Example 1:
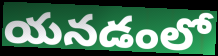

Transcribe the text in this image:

యనడంలో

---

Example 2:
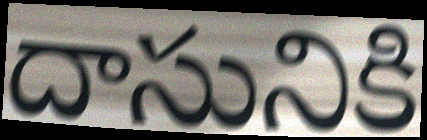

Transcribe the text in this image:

దాసునికి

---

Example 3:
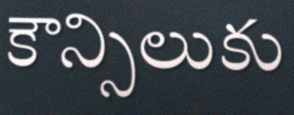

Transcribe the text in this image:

కౌన్సిలుకు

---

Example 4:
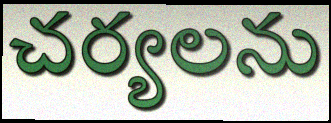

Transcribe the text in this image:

చర్యలను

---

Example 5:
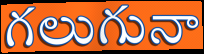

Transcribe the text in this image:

గలుగునా